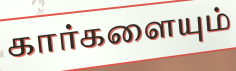
கார்களையும்